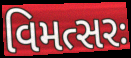
વિમત્સરઃ